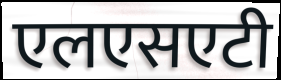
एलएसएटी